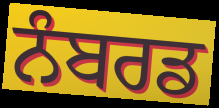
ਨੰਬਰਡ